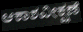
ಆಕಾಶವೀಕ್ಷಣೆ